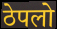
ठेपलो